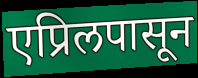
एप्रिलपासून